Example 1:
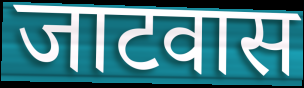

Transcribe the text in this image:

जाटवास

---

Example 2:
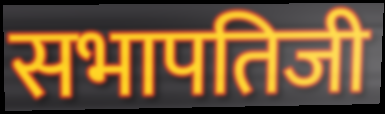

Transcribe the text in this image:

सभापतिजी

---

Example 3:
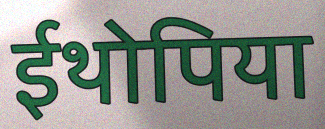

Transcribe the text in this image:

ईथोपिया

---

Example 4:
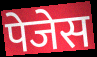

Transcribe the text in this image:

पेजेस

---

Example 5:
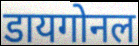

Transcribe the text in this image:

डायगोनल